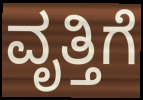
ವೃತ್ತಿಗೆ